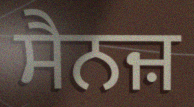
ਸੈਨਜ਼